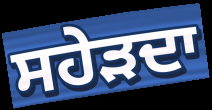
ਸਹੇੜਦਾ